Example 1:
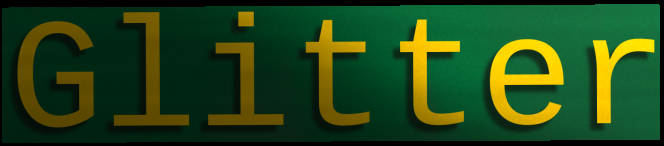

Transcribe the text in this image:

Glitter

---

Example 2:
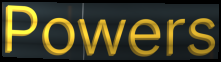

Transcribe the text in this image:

Powers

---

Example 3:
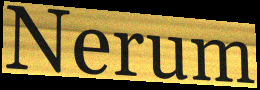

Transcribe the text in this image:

Nerum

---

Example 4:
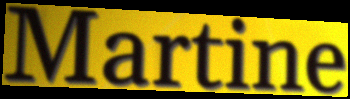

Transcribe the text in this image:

Martine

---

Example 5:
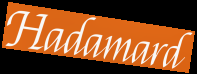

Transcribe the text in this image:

Hadamard